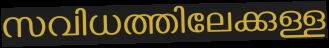
സവിധത്തിലേക്കുള്ള